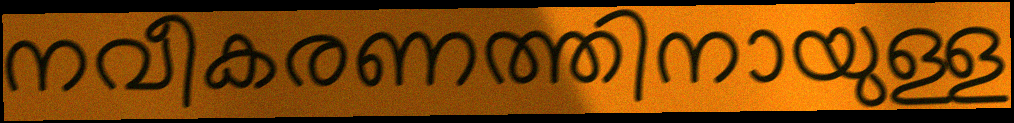
നവീകരണത്തിനായുള്ള